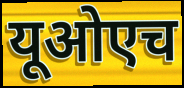
यूओएच